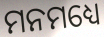
ମନମଧ୍ୟେ